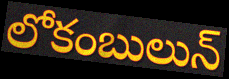
లోకంబులున్